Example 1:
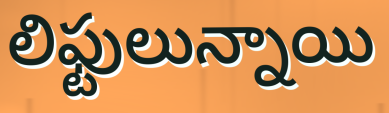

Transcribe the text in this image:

లిఫ్టులున్నాయి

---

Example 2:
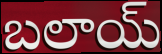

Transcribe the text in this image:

బలాయ్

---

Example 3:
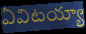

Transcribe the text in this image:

ఏవిటయ్యా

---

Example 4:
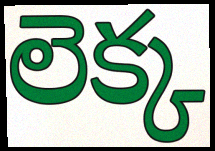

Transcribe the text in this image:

లెక్క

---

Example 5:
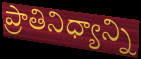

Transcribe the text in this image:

ప్రాతినిధ్యాన్ని